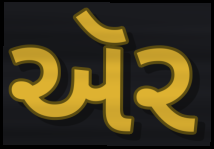
ઍર